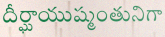
దీర్ఘాయుష్మంతునిగా